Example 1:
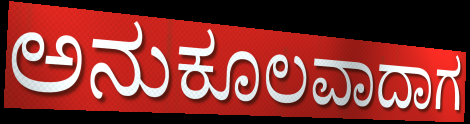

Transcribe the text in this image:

ಅನುಕೂಲವಾದಾಗ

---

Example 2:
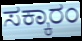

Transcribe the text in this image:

ಸಕ್ಕಾರಂ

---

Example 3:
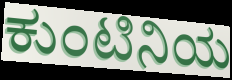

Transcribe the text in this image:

ಕುಂಟಿನಿಯ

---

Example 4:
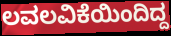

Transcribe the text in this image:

ಲವಲವಿಕೆಯಿಂದಿದ್ದ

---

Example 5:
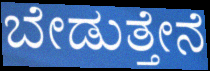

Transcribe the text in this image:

ಬೇಡುತ್ತೇನೆ